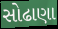
સોઢાણા